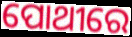
ପୋଥୀରେ